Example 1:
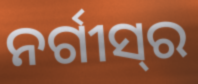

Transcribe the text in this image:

ନର୍ଗୀସ୍‍ର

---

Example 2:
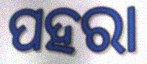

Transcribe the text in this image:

ପହରା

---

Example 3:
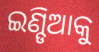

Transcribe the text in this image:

ଇଣ୍ଡିଆକୁ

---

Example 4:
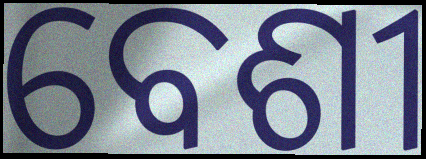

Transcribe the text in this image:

ବେଶୀ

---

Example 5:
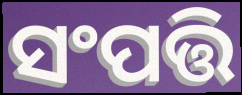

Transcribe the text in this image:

ସଂପତ୍ତି